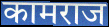
कामराज